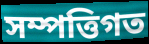
সম্পত্তিগত